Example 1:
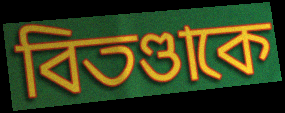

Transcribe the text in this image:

বিতণ্ডাকে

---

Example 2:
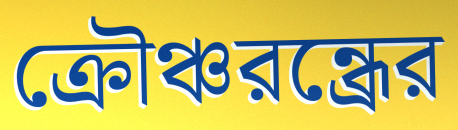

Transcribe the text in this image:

ক্রৌঞ্চরন্ধ্রের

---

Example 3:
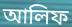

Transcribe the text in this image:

আলিফ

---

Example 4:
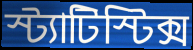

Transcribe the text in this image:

স্ট্যাটিস্টিক্স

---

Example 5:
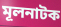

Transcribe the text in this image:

মূলনাটক